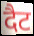
दैट